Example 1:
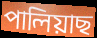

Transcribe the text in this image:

পালিয়াছ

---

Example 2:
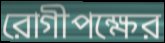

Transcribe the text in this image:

রোগীপক্ষের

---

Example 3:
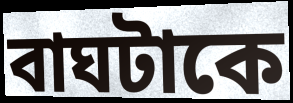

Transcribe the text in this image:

বাঘটাকে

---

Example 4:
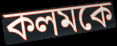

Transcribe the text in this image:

কলমকে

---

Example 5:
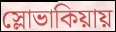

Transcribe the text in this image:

স্লোভাকিয়ায়